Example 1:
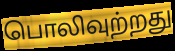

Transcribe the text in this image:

பொலிவுற்றது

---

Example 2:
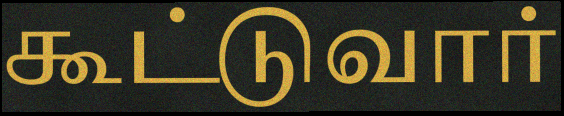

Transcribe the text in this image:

கூட்டுவார்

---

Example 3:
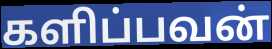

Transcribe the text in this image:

களிப்பவன்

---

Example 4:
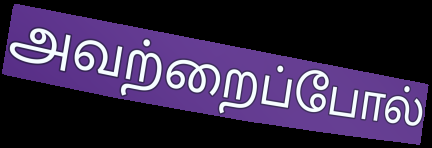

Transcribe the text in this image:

அவற்றைப்போல்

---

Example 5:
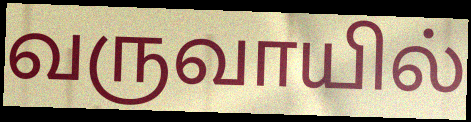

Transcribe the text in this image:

வருவாயில்